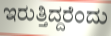
ಇರುತ್ತಿದ್ದರೆಂದು